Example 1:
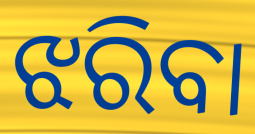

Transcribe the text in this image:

ଝରିବା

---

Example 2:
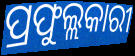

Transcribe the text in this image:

ପ୍ରଫୁଲ୍ଲକାରୀ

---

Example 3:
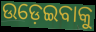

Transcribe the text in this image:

ଉଡ଼େଇବାକୁ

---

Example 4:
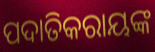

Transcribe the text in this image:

ପଦାତିକରାୟଙ୍କ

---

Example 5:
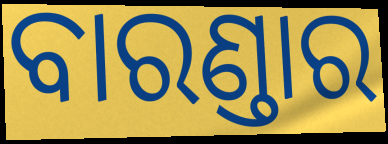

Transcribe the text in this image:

ବାରଣ୍ଡାର